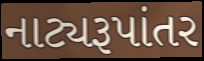
નાટ્યરૂપાંતર